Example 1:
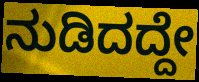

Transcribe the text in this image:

ನುಡಿದದ್ದೇ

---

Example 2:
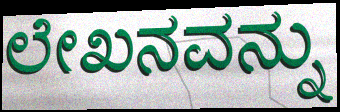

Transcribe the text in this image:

ಲೇಖನವನ್ನು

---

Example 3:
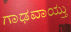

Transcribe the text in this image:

ಗಾಢವಾಯ್ತು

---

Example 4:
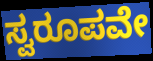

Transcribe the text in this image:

ಸ್ವರೂಪವೇ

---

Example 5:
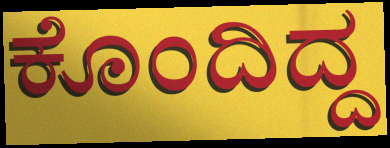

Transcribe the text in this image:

ಕೊಂದಿದ್ದ